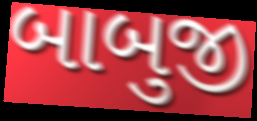
બાબુજી